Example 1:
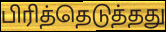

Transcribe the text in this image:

பிரித்தெடுத்தது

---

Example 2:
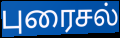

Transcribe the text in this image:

புரைசல்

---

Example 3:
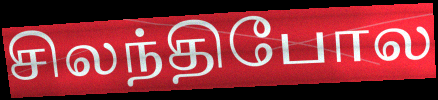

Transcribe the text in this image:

சிலந்திபோல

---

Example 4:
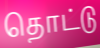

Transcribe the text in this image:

தொட்டு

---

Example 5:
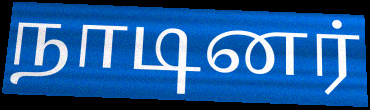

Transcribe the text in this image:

நாடினர்